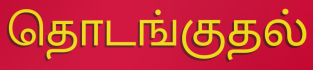
தொடங்குதல்